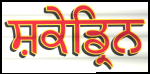
ਸ਼ਕੇਡ੍ਰਿਨ